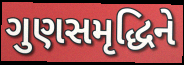
ગુણસમૃદ્ધિને